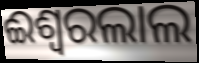
ଈଶ୍ଵରଲାଲ